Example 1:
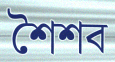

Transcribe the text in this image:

শৈশব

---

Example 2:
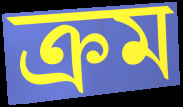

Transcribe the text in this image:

ক্ৰম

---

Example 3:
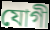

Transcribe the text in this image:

যোগী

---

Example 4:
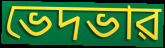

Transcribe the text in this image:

ভেদভাৱ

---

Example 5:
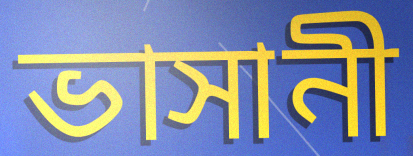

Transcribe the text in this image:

ভাসানী